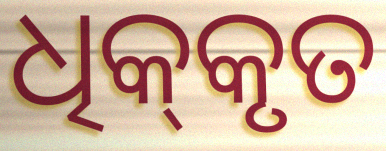
ଧିକ୍‌କୃତ